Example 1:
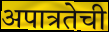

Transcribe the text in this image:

अपात्रतेची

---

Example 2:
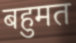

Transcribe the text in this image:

बहुमत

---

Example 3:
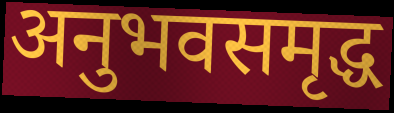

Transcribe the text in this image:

अनुभवसमृद्ध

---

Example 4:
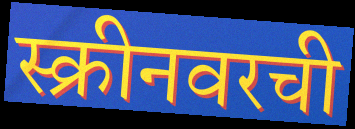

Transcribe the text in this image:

स्क्रीनवरची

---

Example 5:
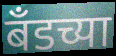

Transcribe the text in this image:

बँडच्या